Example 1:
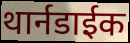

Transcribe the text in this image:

थार्नडाईक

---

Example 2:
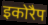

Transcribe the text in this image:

इकोरैप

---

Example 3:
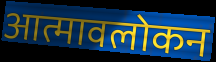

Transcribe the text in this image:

आत्‍मावलोकन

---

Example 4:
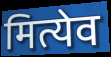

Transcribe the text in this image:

मित्येव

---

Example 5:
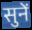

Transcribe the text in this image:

सुनें